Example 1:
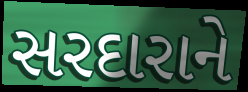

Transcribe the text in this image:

સરદારાને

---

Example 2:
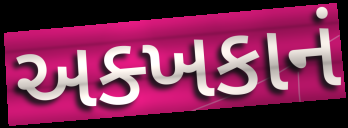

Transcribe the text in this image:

અક્ખકાનં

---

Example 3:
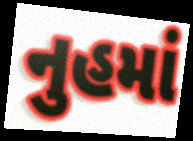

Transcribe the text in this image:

નુહમાં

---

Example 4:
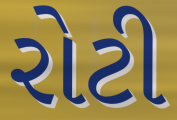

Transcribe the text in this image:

રોટી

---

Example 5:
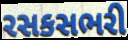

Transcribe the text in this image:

રસકસભરી